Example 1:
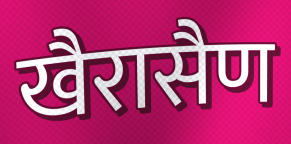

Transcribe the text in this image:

खैरासैण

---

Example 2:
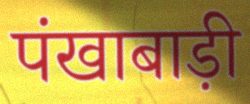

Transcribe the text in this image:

पंखाबाड़ी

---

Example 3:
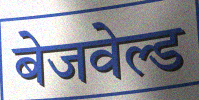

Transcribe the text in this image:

बेजवेल्ड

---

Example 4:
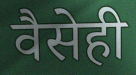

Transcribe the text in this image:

वैसेही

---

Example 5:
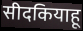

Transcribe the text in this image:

सीदकियाहू